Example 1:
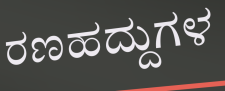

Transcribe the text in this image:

ರಣಹದ್ದುಗಳ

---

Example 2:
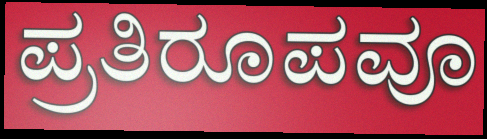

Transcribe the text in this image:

ಪ್ರತಿರೂಪವೂ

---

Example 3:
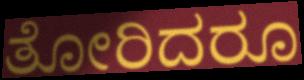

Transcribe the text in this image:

ತೋರಿದರೂ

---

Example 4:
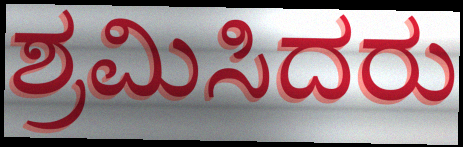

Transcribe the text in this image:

ಶ್ರಮಿಸಿದರು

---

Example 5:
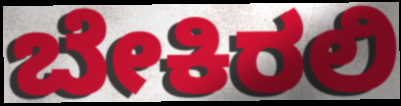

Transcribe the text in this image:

ಬೇಕಿರಲಿ